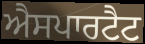
ਐਸਪਾਰਟੈਟ